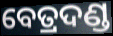
ବେତ୍ରଦଣ୍ଡ